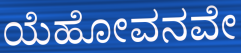
ಯೆಹೋವನವೇ